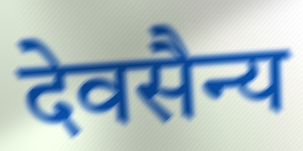
देवसैन्य